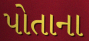
પોતાના